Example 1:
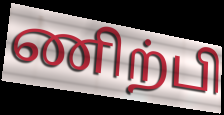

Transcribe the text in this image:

ணிற்பி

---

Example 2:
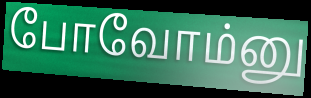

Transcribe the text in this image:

போவோம்னு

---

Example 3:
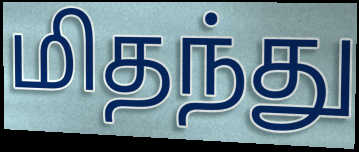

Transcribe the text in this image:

மிதந்து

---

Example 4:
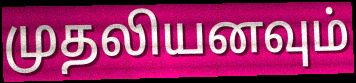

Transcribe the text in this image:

முதலியனவும்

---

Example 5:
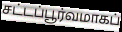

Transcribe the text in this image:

சட்டப்பூர்வமாகப்